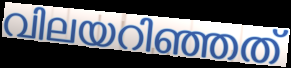
വിലയറിഞ്ഞത്